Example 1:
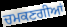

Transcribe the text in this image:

ਚਮਕਣਗੀਆਂ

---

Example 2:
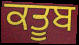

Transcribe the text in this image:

ਕਤੂਬ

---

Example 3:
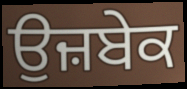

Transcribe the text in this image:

ਉਜ਼ਬੇਕ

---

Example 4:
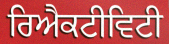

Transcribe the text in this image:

ਰਿਐਕਟੀਵਿਟੀ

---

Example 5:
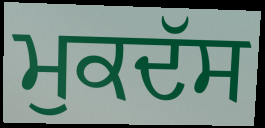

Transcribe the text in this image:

ਮੁਕਦੱਸ